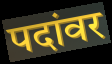
पदांवर